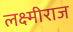
लक्ष्मीराज